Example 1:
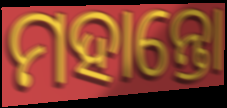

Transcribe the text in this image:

ମହାନ୍ତୋ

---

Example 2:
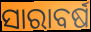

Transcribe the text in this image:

ସାରାବର୍ଷ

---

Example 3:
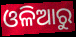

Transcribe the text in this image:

ଓଳିଆରୁ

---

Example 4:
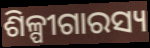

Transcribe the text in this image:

ଶିଳ୍ପୀଗାରସ୍ୟ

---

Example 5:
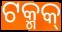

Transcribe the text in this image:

ଟକ୍ମକ୍